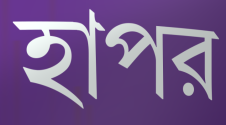
হাপর